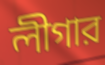
লীগার